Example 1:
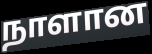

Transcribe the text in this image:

நாளான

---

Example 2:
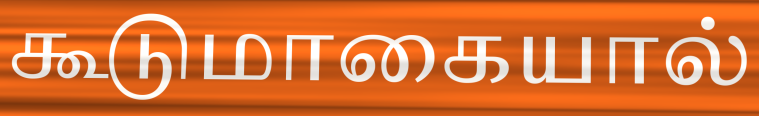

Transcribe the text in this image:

கூடுமாகையால்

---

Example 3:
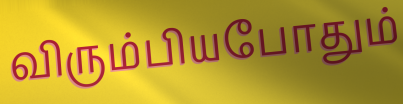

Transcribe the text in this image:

விரும்பியபோதும்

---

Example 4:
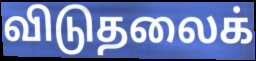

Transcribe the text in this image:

விடுதலைக்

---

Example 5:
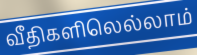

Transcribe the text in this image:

வீதிகளிலெல்லாம்